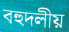
বহুদলীয়